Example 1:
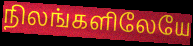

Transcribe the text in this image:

நிலங்களிலேயே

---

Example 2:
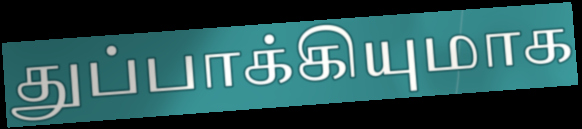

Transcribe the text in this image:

துப்பாக்கியுமாக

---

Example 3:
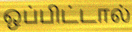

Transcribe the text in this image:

ஒப்பிட்டால்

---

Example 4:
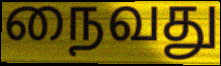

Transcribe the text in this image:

நைவது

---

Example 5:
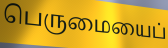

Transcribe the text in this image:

பெருமையைப்